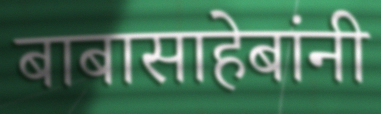
बाबासाहेबांनी